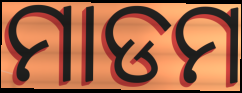
ମାଡମ